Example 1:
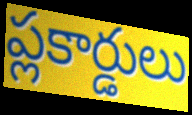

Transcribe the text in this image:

ప్లకార్డులు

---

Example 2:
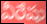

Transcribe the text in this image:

వీరేషు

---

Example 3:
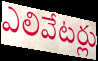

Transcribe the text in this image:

ఎలివేటర్లు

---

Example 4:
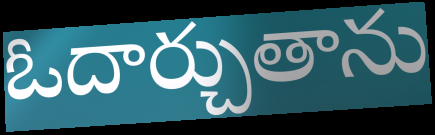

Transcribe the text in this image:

ఓదార్చుతాను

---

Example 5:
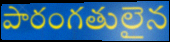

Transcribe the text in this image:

పారంగతులైన